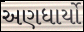
અણધાર્યો